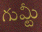
గుమ్టీ